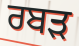
ਰਬੜ